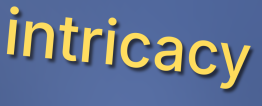
intricacy